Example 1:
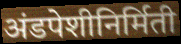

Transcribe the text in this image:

अंडपेशीनिर्मिती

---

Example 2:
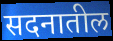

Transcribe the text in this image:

सदनातील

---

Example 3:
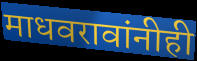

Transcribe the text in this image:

माधवरावांनीही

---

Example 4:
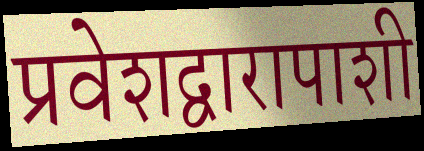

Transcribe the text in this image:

प्रवेशद्वारापाशी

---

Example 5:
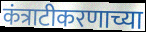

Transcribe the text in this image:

कंत्राटीकरणाच्या